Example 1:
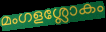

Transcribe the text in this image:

മംഗളശ്ലോകം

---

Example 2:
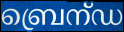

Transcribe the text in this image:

ബ്രെന്ഡ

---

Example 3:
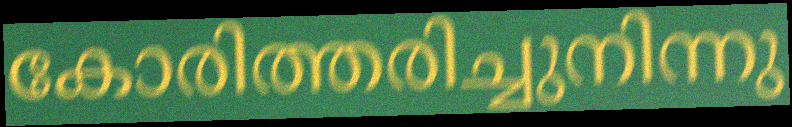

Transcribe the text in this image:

കോരിത്തരിച്ചുനിന്നു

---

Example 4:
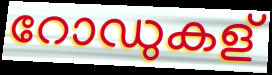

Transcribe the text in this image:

റോഡുകള്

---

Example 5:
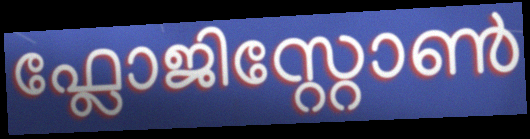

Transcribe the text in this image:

ഫ്ലോജിസ്റ്റോൺ